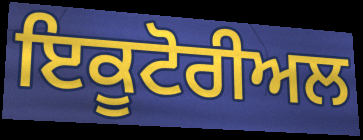
ਇਕੂਟੋਰੀਅਲ